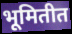
भूमितीत